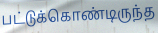
பட்டுக்கொண்டிருந்த